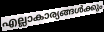
എല്ലാകാര്യങ്ങൾക്കും